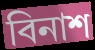
বিনাশ